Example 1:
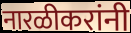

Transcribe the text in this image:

नारळीकरांनी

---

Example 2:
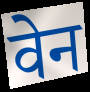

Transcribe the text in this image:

वेन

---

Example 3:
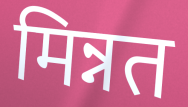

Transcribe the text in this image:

मिन्नत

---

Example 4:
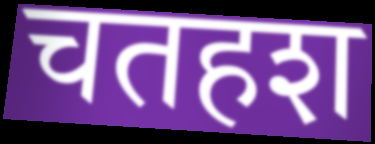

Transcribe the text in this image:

चतहश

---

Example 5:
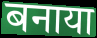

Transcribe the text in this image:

बनाया